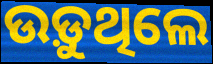
ଉଡ଼ୁଥିଲେ